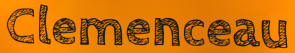
Clemenceau